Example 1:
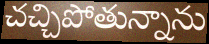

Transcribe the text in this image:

చచ్చిపోతున్నాను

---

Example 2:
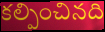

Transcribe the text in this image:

కల్పించినది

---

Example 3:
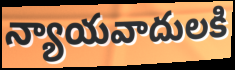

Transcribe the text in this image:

న్యాయవాదులకి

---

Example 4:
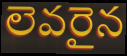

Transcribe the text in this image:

లెవరైన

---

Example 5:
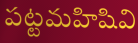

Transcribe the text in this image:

పట్టమహిషివి